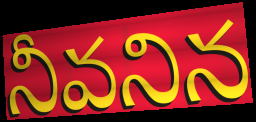
నీవనిన